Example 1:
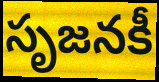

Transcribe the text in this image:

సృజనకీ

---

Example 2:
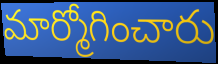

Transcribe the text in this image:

మార్మోగించారు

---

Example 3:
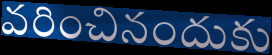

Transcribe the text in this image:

వరించినందుకు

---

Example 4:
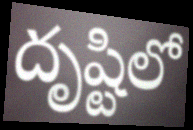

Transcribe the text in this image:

దృష్టిలో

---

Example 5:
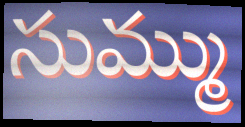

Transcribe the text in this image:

సుమ్ము